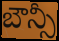
బౌన్సీ